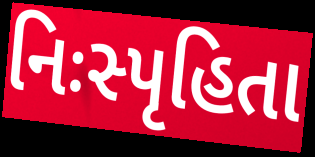
નિઃસ્પૃહિતા